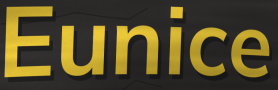
Eunice